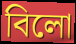
বিলো